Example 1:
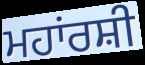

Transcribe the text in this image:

ਮਹਾਂਰਸ਼ੀ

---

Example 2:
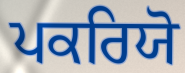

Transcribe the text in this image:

ਪਕਰਿਯੋ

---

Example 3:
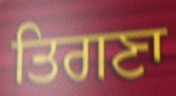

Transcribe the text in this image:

ਤਿਗਣਾ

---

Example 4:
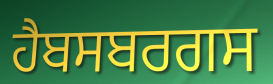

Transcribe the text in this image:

ਹੈਬਸਬਰਗਸ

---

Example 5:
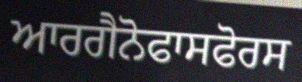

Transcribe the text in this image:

ਆਰਗੈਨੋਫਾਸਫੋਰਸ